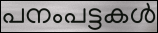
പനംപട്ടകൾ